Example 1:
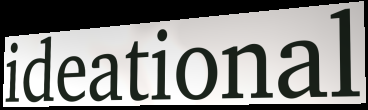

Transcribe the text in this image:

ideational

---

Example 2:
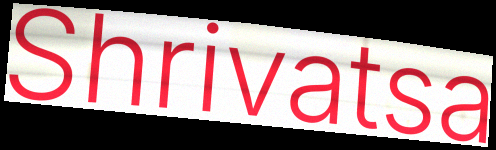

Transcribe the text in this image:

Shrivatsa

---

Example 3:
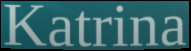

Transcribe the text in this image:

Katrina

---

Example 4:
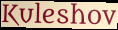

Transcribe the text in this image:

Kuleshov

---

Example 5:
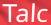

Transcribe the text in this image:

Talc